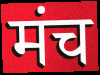
मंच